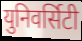
युनिवर्सिटी